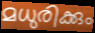
മധുരിക്കും